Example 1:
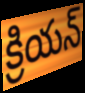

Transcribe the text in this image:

క్రియన్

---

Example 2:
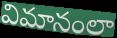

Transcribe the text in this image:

విమానంలా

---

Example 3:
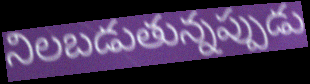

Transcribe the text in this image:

నిలబడుతున్నప్పుడు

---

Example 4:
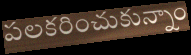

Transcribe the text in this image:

పలకరించుకున్నాం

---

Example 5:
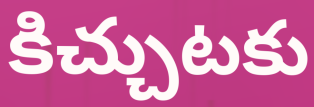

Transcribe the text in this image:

కిచ్చుటకు